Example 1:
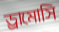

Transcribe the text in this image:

ড্রামোসি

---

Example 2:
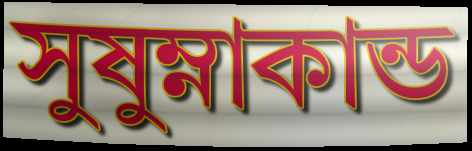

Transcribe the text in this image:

সুষুম্নাকান্ড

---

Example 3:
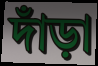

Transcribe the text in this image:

দাঁড়া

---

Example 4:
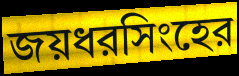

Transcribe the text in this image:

জয়ধরসিংহের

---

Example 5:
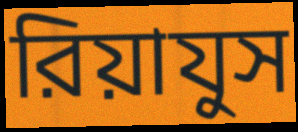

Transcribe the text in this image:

রিয়াযুস